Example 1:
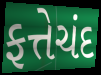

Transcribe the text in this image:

ફત્તેચંદ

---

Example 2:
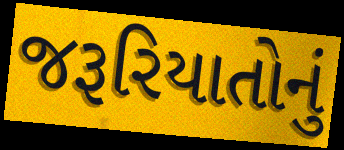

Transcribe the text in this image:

જરૂરિયાતોનું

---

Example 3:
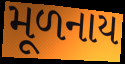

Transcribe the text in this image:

મૂળનાય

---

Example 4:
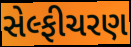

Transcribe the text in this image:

સેલ્ફીચરણ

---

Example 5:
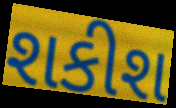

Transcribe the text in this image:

શકીશ